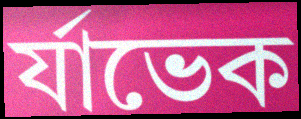
র্যাভেক